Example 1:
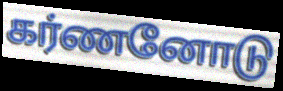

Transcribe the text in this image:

கர்ணனோடு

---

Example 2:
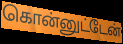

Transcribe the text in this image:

கொன்னுட்டேன்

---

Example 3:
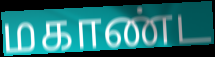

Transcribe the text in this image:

மகாண்ட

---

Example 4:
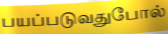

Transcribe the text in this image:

பயப்படுவதுபோல்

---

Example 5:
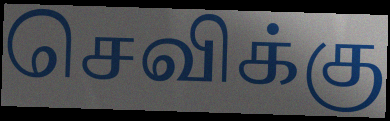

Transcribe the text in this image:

செவிக்கு